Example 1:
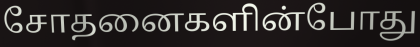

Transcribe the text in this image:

சோதனைகளின்போது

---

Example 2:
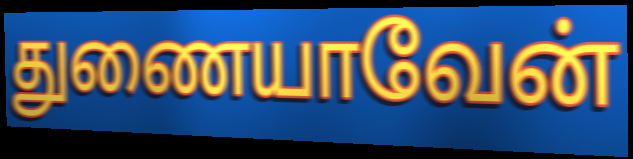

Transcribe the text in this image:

துணையாவேன்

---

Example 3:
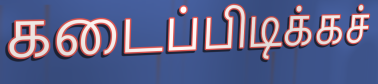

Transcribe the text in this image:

கடைப்பிடிக்கச்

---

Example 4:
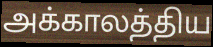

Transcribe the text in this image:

அக்காலத்திய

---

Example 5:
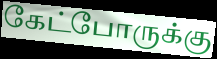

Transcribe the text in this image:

கேட்போருக்கு